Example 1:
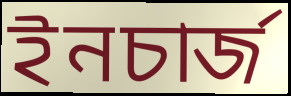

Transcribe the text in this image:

ইনচার্জ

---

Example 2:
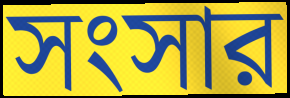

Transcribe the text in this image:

সংসার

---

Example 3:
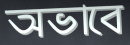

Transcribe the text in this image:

অভাবে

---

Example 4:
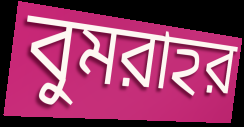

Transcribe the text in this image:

বুমরাহর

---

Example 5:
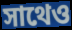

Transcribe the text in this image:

সাথেও